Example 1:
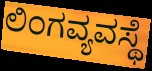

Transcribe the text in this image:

ಲಿಂಗವ್ಯವಸ್ಥೆ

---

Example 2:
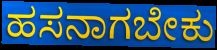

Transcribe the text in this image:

ಹಸನಾಗಬೇಕು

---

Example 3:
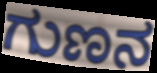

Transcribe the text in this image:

ಗುಣನ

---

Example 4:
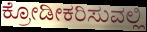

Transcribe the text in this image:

ಕ್ರೋಡೀಕರಿಸುವಲ್ಲಿ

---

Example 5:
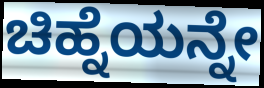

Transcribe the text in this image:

ಚಿಹ್ನೆಯನ್ನೇ